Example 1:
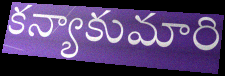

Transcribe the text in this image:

కన్యాకుమారి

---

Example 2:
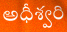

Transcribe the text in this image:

అధీశ్వరి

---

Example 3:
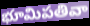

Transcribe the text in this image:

భూమిపతివా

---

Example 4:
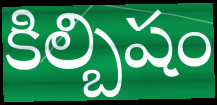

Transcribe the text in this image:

కిల్బిషం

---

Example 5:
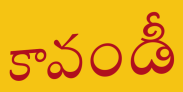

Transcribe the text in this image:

కావండీ